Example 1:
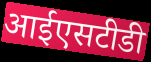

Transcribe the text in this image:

आईएसटीडी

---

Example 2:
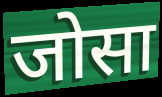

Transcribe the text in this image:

जोसा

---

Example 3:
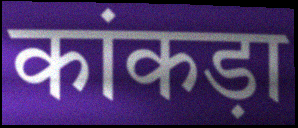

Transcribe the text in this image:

कांकड़ा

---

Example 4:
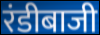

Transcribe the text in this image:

रंडीबाजी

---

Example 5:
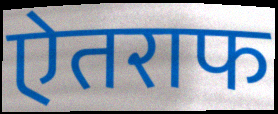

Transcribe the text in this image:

ऐतराफ